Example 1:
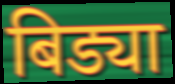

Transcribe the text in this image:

बिड्या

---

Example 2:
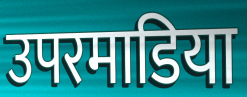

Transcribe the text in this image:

उपरमाडिया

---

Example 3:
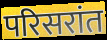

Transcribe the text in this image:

परिसरांत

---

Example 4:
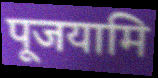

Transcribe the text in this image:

पूजयामि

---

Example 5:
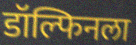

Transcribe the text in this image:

डॉल्फिनला